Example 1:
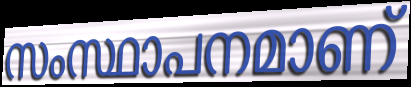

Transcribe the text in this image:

സംസ്ഥാപനമാണ്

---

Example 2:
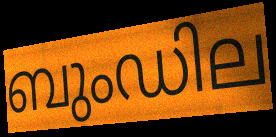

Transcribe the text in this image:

ബുംഡില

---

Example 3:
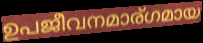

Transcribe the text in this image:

ഉപജീവനമാര്ഗമായ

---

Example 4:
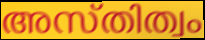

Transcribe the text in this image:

അസ്‌തിത്വം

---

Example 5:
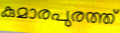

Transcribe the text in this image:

കുമാരപുരത്ത്